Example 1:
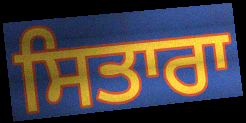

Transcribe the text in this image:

ਸਿਤਾਰਾ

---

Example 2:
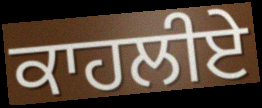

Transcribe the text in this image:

ਕਾਹਲੀਏ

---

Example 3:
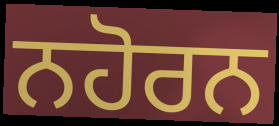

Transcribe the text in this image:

ਨਹੋਰਨ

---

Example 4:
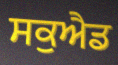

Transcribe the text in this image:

ਸਕੁਐਡ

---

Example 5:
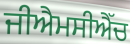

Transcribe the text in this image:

ਜੀਐਮਸੀਐੱਚ